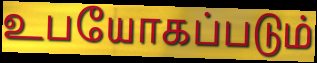
உபயோகப்படும்